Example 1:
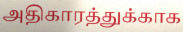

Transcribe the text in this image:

அதிகாரத்துக்காக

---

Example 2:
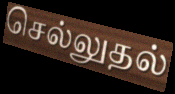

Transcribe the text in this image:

செல்லுதல்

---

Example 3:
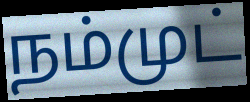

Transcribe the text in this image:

நம்முட்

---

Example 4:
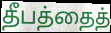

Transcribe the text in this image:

தீபத்தைத்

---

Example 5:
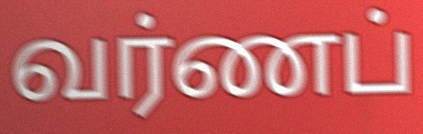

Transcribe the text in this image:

வர்ணப்